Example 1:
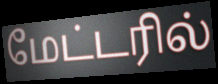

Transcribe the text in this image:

மேட்டரில்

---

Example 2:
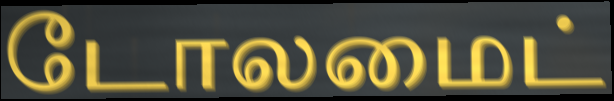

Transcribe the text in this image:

டோலமைட்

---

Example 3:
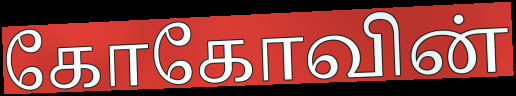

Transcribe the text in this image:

கோகோவின்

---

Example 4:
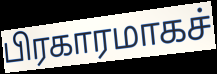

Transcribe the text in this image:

பிரகாரமாகச்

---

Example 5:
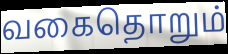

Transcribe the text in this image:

வகைதொறும்